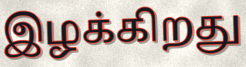
இழக்கிறது